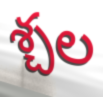
శ్చల